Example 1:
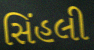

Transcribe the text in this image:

સિંહલી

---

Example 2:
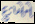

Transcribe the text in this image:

દુઃખેને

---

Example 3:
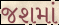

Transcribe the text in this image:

જશમાં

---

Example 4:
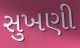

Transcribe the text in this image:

સુખણી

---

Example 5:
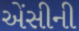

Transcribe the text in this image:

એંસીની